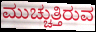
ಮುಚ್ಚುತ್ತಿರುವ